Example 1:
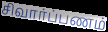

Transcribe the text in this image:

சிவார்ப்பணம்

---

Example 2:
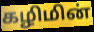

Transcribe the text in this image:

கழிமின்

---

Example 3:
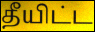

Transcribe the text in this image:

தீயிட்ட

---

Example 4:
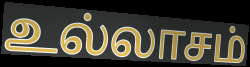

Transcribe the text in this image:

உல்லாசம்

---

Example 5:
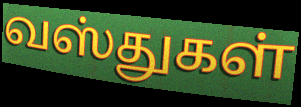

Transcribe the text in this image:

வஸ்துகள்